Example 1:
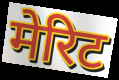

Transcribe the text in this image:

मेरिट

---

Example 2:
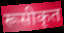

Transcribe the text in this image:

रूसीकृत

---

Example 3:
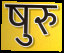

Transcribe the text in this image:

षुरु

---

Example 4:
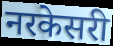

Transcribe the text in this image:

नरकेसरी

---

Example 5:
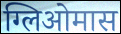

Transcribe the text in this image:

ग्लिओमास